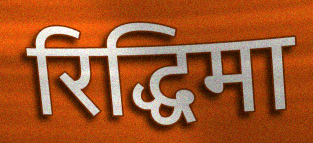
रिद्धिमा